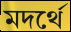
মদর্থে